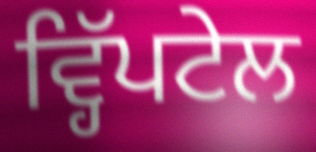
ਵ੍ਹਿੱਪਟੇਲ